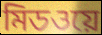
মিডওয়ে